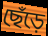
ছেঁড়ে